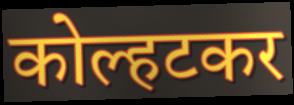
कोल्हटकर